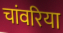
चांवरिया